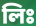
লিঃ